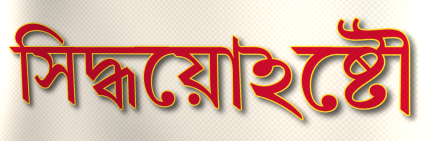
সিদ্ধয়োঽষ্টৌ